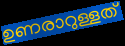
ഉണരാറുള്ളത്